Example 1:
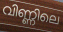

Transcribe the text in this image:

വിണ്ണിലെ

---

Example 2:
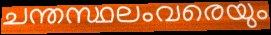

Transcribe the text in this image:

ചന്തസ്ഥലംവരെയും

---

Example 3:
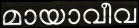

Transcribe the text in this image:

മായാവീവ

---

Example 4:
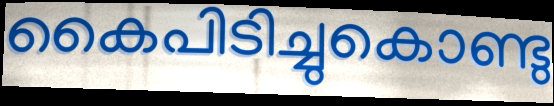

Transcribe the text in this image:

കൈപിടിച്ചുകൊണ്ടു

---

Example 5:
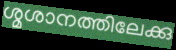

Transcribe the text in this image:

ശ്മശാനത്തിലേക്കു